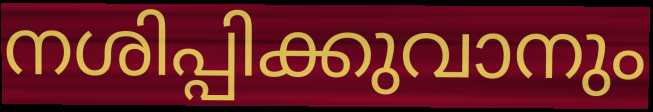
നശിപ്പിക്കുവാനും